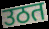
उठत